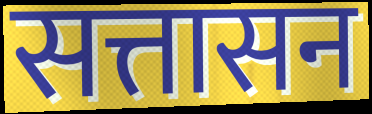
सत्तासन